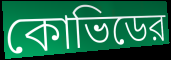
কোভিডের